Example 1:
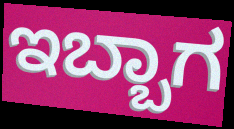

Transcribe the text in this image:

ಇಬ್ಬಾಗ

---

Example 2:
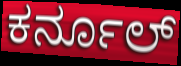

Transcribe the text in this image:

ಕರ್ನೂಲ್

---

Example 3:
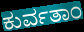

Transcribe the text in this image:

ಕುರ್ವತಾಂ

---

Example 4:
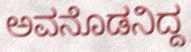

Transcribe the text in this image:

ಅವನೊಡನಿದ್ದ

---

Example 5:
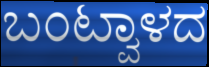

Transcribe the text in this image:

ಬಂಟ್ವಾಳದ